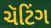
ચૅટિંગ